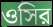
ওসির